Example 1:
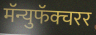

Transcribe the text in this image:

मॅन्युफॅक्चरर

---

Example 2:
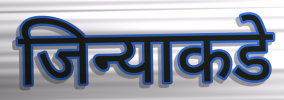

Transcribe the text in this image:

जिन्याकडे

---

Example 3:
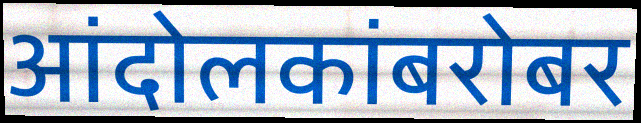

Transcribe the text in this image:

आंदोलकांबरोबर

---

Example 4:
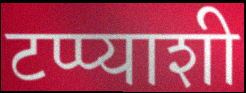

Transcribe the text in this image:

टप्प्याशी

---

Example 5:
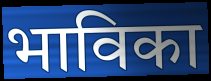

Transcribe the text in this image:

भाविका